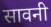
सावनी